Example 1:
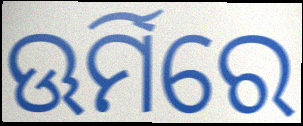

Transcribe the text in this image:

ଊର୍ମିରେ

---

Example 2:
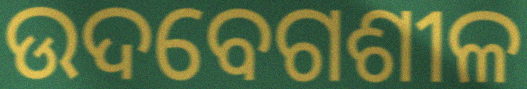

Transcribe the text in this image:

ଉଦବେଗଶୀଳ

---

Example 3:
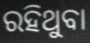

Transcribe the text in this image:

ରହିଥୁବା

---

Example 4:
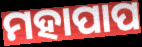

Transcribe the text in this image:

ମହାପାପ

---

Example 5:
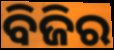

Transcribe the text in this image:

ବିଜିର